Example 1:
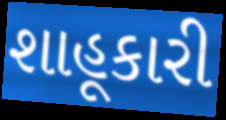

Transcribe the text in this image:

શાહૂકારી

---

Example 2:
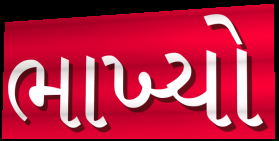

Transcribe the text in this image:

ભાખ્યો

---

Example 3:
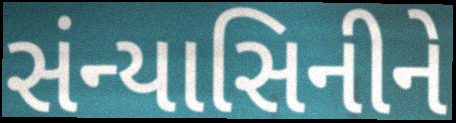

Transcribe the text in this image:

સંન્યાસિનીને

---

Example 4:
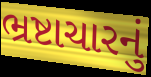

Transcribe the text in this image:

ભ્રષ્ટાચારનું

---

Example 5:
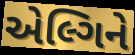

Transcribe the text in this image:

એલ્ગિને